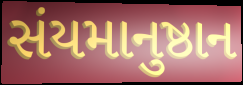
સંયમાનુષ્ઠાન